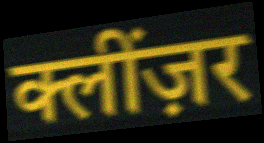
क्लींज़र